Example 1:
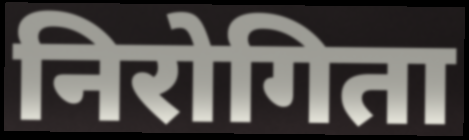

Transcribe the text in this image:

निरोगिता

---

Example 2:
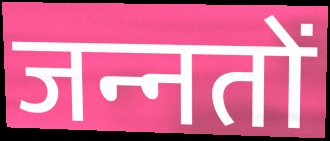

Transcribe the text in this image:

जन्नतों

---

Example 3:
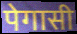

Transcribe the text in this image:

पेगासी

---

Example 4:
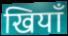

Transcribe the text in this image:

खियाँ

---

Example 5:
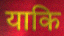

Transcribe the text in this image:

याकि